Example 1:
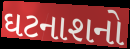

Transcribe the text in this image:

ઘટનાશનો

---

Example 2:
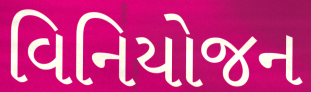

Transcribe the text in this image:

વિનિયોજન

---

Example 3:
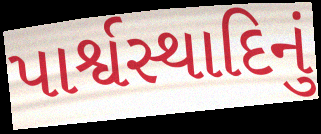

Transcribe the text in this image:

પાર્શ્વસ્થાદિનું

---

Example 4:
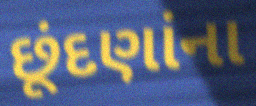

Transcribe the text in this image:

છૂંદણાંના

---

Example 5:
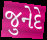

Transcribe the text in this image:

જુનેદે